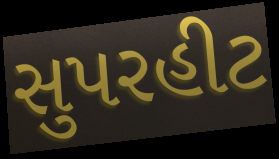
સુપરહીટ